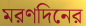
মরণদিনের